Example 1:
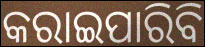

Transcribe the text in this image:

କରାଇପାରିବି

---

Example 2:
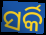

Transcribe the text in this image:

ସର୍କି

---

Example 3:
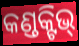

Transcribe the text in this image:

କଣ୍ଡକ୍ଟିଭ୍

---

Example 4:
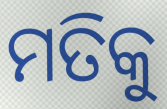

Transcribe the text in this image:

ମତିକୁ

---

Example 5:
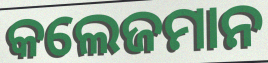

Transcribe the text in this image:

କଲେଜମାନ